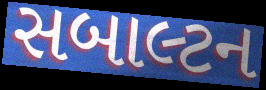
સબાલ્ટન